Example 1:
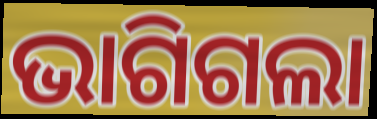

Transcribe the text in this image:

ଭାଗିଗଲା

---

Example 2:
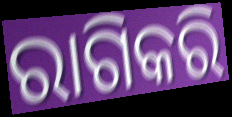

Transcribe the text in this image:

ରାଗିକରି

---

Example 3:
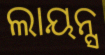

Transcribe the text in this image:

ଲାୟନ୍ସ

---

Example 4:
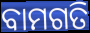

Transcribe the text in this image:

ବାମଗତି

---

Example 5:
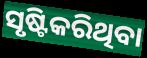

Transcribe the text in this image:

ସୃଷ୍ଟିକରିଥିବା